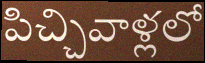
పిచ్చివాళ్లలో